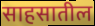
साहसातील